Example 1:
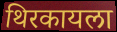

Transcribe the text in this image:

थिरकायला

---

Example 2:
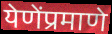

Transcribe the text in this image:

येणेंप्रमाणे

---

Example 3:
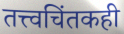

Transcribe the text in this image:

तत्त्वचिंतकही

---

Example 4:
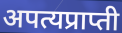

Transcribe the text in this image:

अपत्यप्राप्ती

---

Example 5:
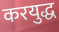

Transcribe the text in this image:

करयुद्ध